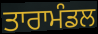
ਤਾਰਾਮੰਡਲ